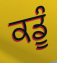
ਕਡੂੰ